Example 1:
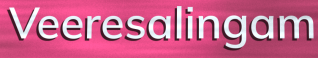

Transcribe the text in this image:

Veeresalingam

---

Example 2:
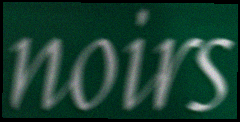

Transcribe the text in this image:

noirs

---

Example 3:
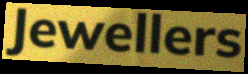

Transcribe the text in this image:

Jewellers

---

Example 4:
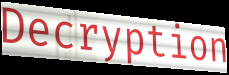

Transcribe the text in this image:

Decryption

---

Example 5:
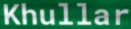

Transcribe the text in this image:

Khullar